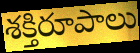
శక్తిరూపాలు